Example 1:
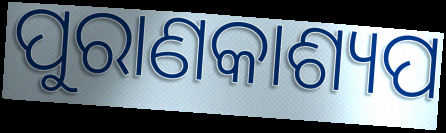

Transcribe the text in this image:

ପୁରାଣକାଶ୍ୟପ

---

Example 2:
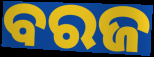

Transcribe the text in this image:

ବରଜ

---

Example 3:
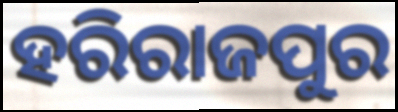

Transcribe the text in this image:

ହରିରାଜପୁର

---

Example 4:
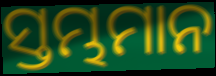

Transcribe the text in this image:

ସ୍ତମ୍ଭମାନ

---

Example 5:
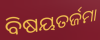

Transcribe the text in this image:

ବିଷୟତର୍ଜମା